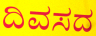
ದಿವಸದ